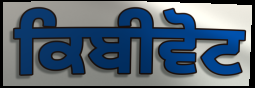
ਕਿਬੀਵੋਟ